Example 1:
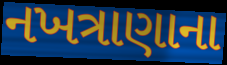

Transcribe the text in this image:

નખત્રાણાના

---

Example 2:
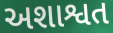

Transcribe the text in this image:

અશાશ્વત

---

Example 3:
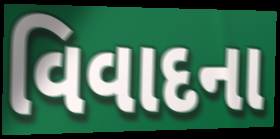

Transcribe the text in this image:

વિવાદના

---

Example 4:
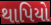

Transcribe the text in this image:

થાપિયો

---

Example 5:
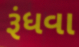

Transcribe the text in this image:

રૂંધવા